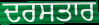
ਦਰਸਤਾਰ